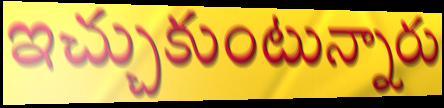
ఇచ్చుకుంటున్నారు